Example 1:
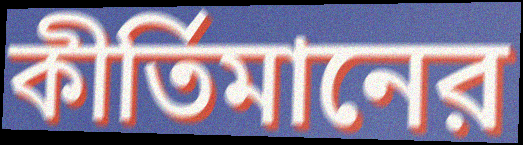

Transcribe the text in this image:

কীর্তিমানের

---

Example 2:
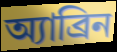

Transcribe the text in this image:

অ্যাব্রিন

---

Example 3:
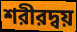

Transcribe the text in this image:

শরীরদ্বয়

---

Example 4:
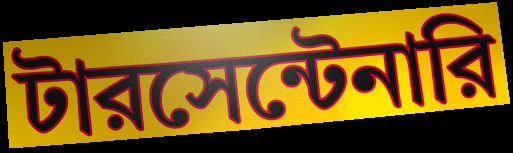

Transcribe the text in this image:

টারসেন্টেনারি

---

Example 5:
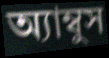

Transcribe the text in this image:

অ্যাম্বুস